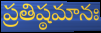
ప్రతిష్ఠమానః